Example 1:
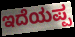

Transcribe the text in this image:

ಇದೆಯಪ್ಪ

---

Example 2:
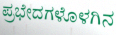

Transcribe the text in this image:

ಪ್ರಭೇದಗಳೊಳಗಿನ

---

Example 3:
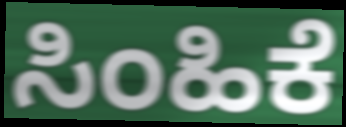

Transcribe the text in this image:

ಸಿಂಹಿಕೆ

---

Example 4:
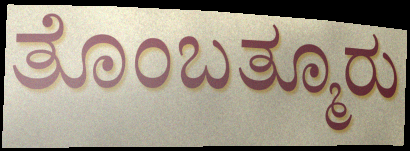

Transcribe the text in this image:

ತೊಂಬತ್ಮೂರು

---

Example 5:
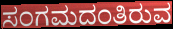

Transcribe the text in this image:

ಸಂಗಮದಂತಿರುವ